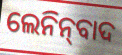
ଲେନିନ୍‌ବାଦ